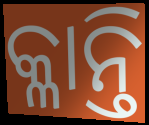
କ୍ଳାନ୍ତି